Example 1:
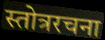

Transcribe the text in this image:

स्तोत्ररचना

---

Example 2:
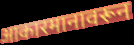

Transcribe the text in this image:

आकारमानावरून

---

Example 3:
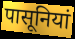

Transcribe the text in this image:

पासूनियां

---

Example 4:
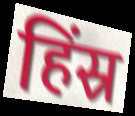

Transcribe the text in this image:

हिंस्र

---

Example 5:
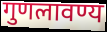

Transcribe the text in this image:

गुणलावण्य